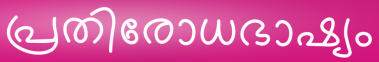
പ്രതിരോധഭാഷ്യം